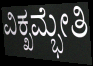
ವಿಕ್ಖಮ್ಭೇತಿ